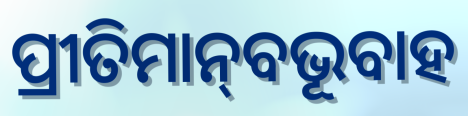
ପ୍ରୀତିମାନ୍‌ବଭୂବାହ